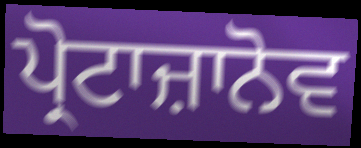
ਪ੍ਰੋਟਾਜ਼ਾਨੋਵ